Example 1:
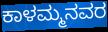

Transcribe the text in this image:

ಕಾಳಮ್ಮನವರ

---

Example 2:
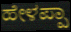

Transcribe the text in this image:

ಹೇಳಪ್ಪಾ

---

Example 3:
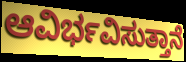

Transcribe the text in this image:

ಆವಿರ್ಭವಿಸುತ್ತಾನೆ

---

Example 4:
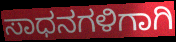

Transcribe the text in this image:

ಸಾಧನಗಳಿಗಾಗಿ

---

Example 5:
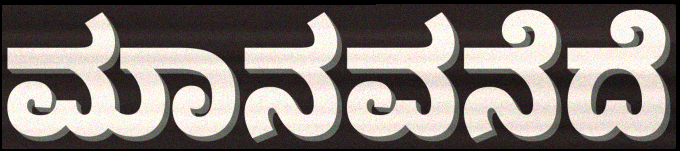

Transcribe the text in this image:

ಮಾನವನೆದೆ